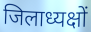
जिलाध्यक्षों